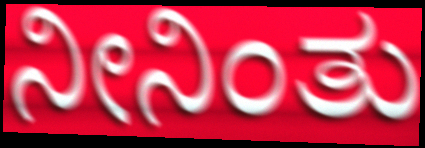
ನೀನಿಂತು